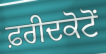
ਫ਼ਰੀਦਕੋਟੋਂ